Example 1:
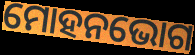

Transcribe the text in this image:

ମୋହନଭୋଗ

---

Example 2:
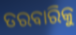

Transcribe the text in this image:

ତରବାରିକୁ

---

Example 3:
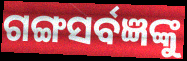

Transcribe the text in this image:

ଗଙ୍ଗସର୍ବଜ୍ଞଙ୍କୁ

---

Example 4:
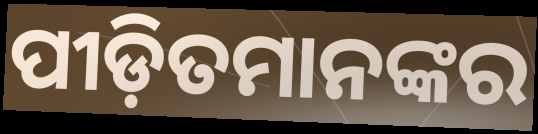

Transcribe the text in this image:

ପୀଡ଼ିତମାନଙ୍କର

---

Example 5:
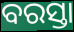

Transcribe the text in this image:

ବରସ୍ତା